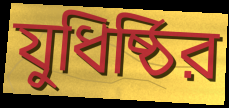
যুধিষ্ঠির